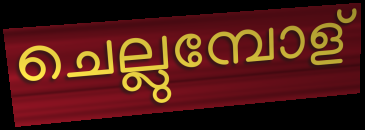
ചെല്ലുമ്പോള്